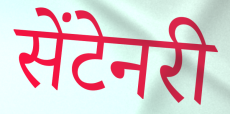
सेंटेनरी